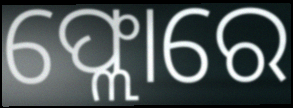
ଫ୍ଲୋରେ